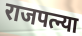
राजपत्न्या